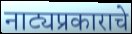
नाट्यप्रकाराचे